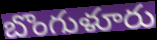
బొంగుళూరు